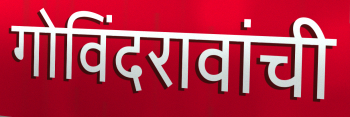
गोविंदरावांची